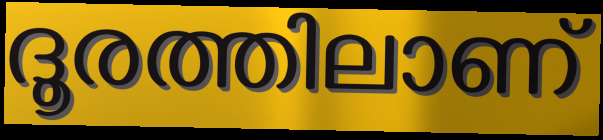
ദൂരത്തിലാണ്